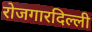
रोजगारदिल्ली